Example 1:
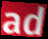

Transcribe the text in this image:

ad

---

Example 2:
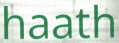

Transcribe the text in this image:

haath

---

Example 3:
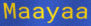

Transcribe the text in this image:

Maayaa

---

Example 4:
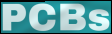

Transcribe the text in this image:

PCBs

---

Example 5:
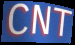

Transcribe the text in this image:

CNT